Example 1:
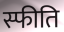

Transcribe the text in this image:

स्‍फीति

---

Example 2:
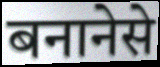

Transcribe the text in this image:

बनानेसे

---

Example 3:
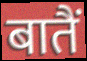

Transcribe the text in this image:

बातैं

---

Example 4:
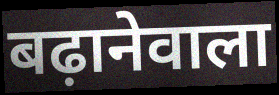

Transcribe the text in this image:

बढ़ानेवाला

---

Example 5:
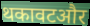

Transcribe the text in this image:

थकावटऔर